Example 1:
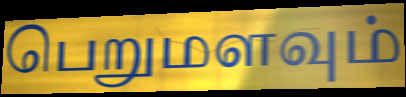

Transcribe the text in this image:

பெறுமளவும்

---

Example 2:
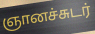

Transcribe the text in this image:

ஞானச்சுடர்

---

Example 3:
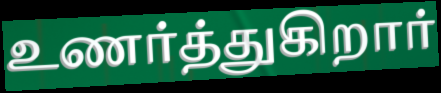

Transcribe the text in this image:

உணர்த்துகிறார்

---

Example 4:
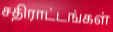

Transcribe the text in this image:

சதிராட்டங்கள்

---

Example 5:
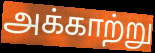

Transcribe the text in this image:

அக்காற்று